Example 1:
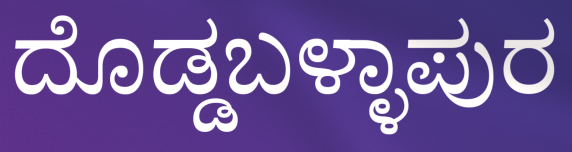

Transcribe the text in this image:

ದೊಡ್ಡಬಳ್ಳಾಪುರ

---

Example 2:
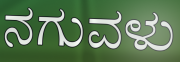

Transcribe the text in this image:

ನಗುವಳು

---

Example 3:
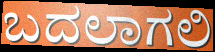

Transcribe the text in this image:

ಬದಲಾಗಲಿ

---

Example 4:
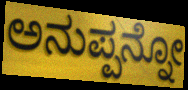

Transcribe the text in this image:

ಅನುಪ್ಪನ್ನೋ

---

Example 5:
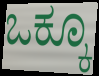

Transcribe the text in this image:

ಒಕ್ಕೂ